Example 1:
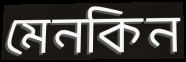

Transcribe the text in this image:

মেনকিন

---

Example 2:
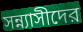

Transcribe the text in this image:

সন্ন্যাসীদের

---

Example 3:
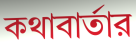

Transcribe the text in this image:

কথাবার্তার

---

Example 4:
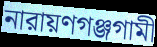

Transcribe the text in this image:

নারায়ণগঞ্জগামী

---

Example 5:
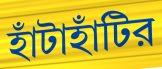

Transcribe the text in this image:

হাঁটাহাঁটির